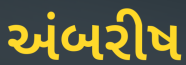
અંબરીષ